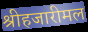
श्रीहजारीमल